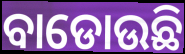
ବାଡୋଉଛି